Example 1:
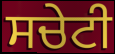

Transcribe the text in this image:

ਸਚੇਟੀ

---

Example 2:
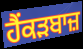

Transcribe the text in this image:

ਹੈਂਕੜਬਾਜ਼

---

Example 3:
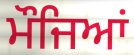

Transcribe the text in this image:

ਮੌਜਿਆਂ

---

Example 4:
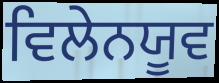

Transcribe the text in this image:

ਵਿਲੇਨਯੂਵ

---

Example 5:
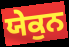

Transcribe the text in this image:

ਯੇਕੁਨ